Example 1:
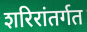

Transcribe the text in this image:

शरिरांतर्गत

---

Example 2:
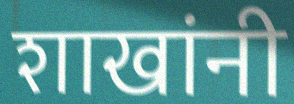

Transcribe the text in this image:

शाखांनी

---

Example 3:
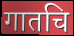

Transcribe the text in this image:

गातचि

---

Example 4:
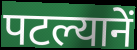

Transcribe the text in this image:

पटल्यानें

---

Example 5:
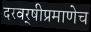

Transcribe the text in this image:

दरवर्षीप्रमाणेच